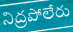
నిద్రపోలేరు